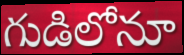
గుడిలోనూ